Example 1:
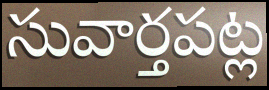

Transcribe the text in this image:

సువార్తపట్ల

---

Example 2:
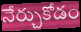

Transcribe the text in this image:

నేర్చుకోడం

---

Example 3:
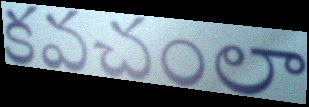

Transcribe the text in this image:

కవచంలా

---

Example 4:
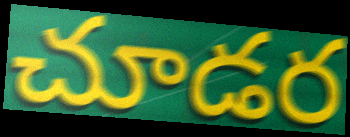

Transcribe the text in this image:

చూడర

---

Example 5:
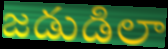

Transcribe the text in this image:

జడుడిలా